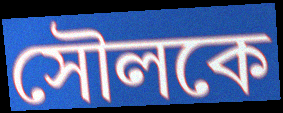
সৌলকে